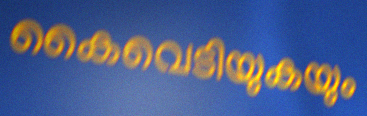
കൈവെടിയുകയും